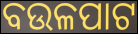
ବଉଳପାଟ